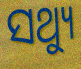
ସଥ୍ୟୁ